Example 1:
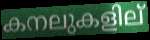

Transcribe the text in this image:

കനലുകളില്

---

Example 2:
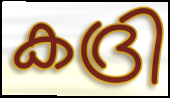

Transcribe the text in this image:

കദ്രി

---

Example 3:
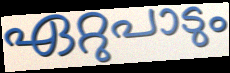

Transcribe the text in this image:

ഏറ്റുപാടും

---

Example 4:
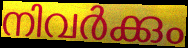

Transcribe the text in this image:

നിവർക്കും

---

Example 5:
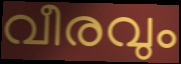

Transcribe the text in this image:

വീരവും